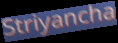
Striyancha